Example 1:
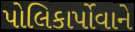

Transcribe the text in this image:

પોલિકાર્પોવાને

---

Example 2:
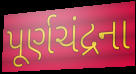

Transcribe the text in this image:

પૂર્ણચંદ્રના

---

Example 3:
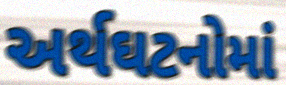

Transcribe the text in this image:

અર્થઘટનોમાં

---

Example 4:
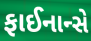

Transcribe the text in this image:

ફાઈનાન્સે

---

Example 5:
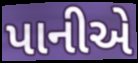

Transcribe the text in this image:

પાનીએ